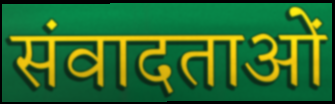
संवादताओं